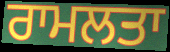
ਰਾਮਲਤਾ